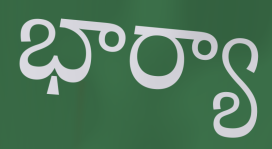
భార్యా